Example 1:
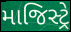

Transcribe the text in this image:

માજિસ્ટ્રે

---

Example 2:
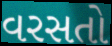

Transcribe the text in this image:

વરસતો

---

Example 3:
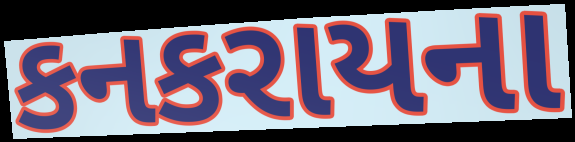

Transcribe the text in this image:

કનકરાયના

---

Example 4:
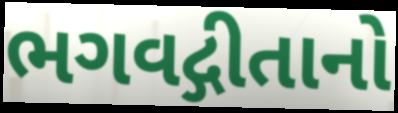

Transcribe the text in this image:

ભગવદ્ગીતાનો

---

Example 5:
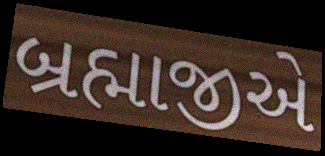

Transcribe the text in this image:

બ્રહ્માજીએ